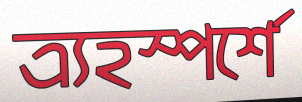
ত্র্যহস্পর্শে